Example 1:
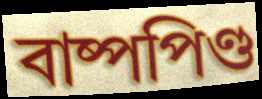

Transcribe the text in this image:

বাষ্পপিণ্ড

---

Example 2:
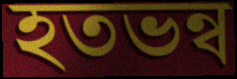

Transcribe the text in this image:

হতভন্ব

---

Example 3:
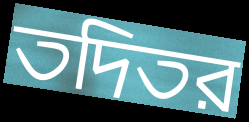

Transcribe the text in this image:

তদিতর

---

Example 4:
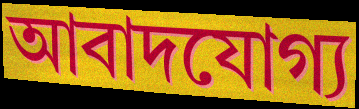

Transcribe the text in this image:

আবাদযোগ্য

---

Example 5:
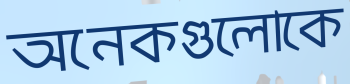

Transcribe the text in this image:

অনেকগুলোকে